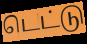
டெட்டு